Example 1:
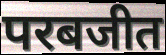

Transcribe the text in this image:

परबजीत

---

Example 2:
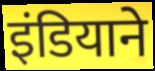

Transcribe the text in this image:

इंडियाने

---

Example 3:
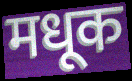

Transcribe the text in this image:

मधूक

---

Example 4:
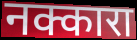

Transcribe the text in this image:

नक्कारा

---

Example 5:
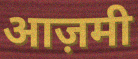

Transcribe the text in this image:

आज़मी